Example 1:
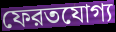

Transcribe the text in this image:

ফেরতযোগ্য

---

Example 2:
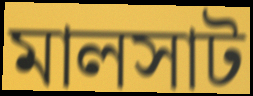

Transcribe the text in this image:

মালসাট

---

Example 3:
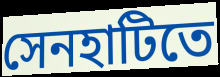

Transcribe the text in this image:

সেনহাটিতে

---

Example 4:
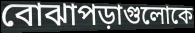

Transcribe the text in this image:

বোঝাপড়াগুলোকে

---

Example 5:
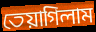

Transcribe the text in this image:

তেয়াগিলাম